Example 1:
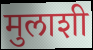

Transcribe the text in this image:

मुलाशी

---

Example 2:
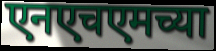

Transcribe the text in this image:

एनएचएमच्या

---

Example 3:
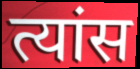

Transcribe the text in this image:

त्यांस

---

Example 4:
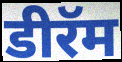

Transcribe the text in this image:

डीरॅम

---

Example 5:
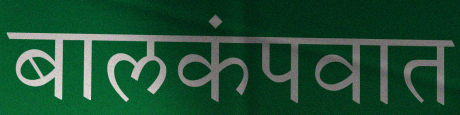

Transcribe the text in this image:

बालकंपवात